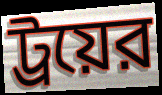
ট্রয়ের